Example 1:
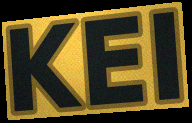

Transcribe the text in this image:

KEI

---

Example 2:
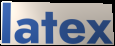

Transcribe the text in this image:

latex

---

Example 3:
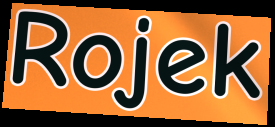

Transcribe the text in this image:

Rojek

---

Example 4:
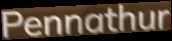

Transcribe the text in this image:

Pennathur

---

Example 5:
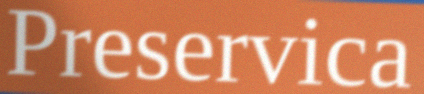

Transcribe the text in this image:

Preservica